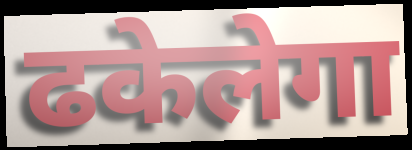
ढकेलेगा